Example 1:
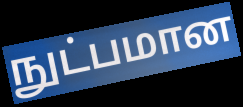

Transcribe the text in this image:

நுட்பமான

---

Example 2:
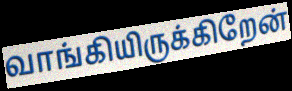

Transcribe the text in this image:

வாங்கியிருக்கிறேன்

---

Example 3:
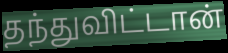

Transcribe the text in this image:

தந்துவிட்டான்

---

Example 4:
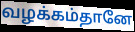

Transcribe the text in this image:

வழக்கம்தானே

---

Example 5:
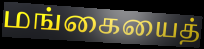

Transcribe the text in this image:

மங்கையைத்